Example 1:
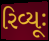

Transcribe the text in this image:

રિવ્યૂઃ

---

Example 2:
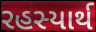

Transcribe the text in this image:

રહસ્યાર્થ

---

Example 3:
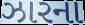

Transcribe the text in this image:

ઝારના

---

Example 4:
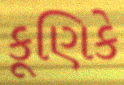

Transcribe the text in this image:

કૂણિકે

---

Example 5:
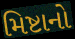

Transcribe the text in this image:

મિષ્ટાનો